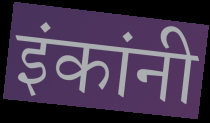
इंकांनी